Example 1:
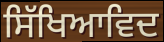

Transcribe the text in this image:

ਸਿੱਖਿਆਵਿਦ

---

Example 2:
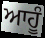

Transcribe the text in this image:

ਆਹੂੰ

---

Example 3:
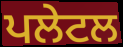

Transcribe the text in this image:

ਪਲੇਟਲ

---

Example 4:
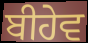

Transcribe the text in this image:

ਬੀਹੇਵ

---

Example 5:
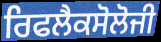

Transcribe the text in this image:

ਰਿਫਲੈਕਸੋਲੋਜੀ